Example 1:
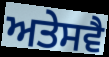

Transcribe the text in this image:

ਅਤੇਸਵੈ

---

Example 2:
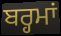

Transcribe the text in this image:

ਬਰ੍ਹਮਾਂ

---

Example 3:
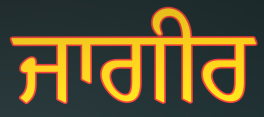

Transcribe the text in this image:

ਜਾਗੀਰ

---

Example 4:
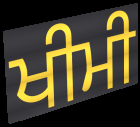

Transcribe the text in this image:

ਖੀਮੀ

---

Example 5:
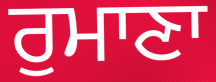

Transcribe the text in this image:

ਰੁਮਾਣਾ